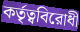
কর্তৃত্ববিরোধী